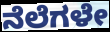
ನೆಲೆಗಳೇ